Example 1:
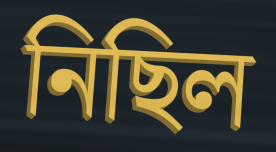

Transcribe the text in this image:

নিছিল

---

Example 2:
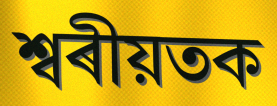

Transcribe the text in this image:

শ্বৰীয়তক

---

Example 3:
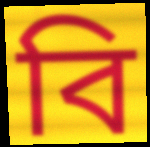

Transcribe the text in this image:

বি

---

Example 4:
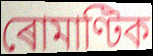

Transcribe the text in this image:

ৰোমাণ্টিক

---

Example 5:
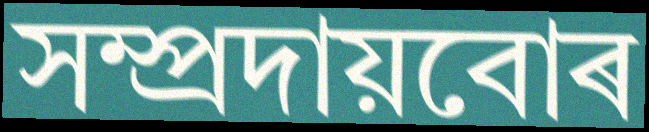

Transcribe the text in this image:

সম্প্ৰদায়বোৰ